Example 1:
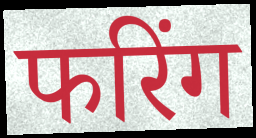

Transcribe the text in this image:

फरिंग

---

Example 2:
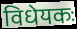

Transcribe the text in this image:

विधेयकः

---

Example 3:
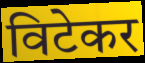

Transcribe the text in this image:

विटेकर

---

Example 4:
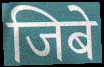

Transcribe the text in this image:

जिबे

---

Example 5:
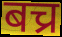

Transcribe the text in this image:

बच्र